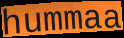
hummaa